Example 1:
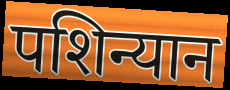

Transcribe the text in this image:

पशिन्यान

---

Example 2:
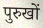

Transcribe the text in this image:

पुरुखों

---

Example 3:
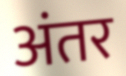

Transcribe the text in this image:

अंतर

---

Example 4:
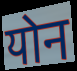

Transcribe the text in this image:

योन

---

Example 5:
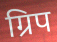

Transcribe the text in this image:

ग्रिप